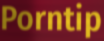
Porntip